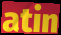
atin